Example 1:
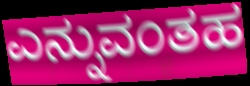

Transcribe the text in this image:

ಎನ್ನುವಂತಹ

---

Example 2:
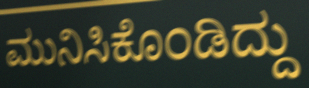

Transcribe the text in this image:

ಮುನಿಸಿಕೊಂಡಿದ್ದು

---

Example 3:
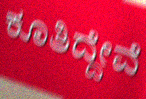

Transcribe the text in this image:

ಕೂತಿದ್ದೇವೆ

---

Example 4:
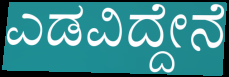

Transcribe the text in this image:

ಎಡವಿದ್ದೇನೆ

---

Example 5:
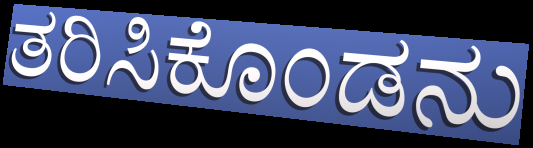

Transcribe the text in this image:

ತರಿಸಿಕೊಂಡನು